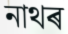
নাথৰ